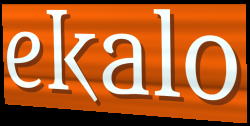
ekalo